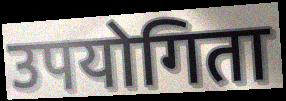
उपयोगिता